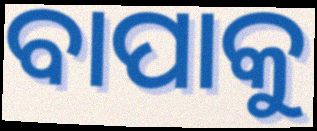
ବାପାକୁ